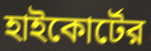
হাইকোর্টের